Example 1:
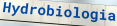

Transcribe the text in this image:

Hydrobiologia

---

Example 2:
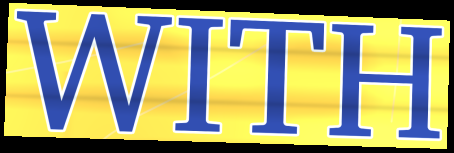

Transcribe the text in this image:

WITH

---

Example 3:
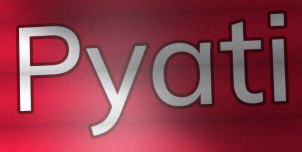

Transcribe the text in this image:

Pyati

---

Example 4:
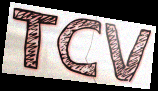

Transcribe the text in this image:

TCV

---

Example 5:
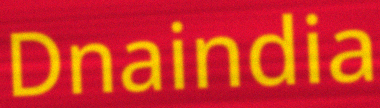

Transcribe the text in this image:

Dnaindia